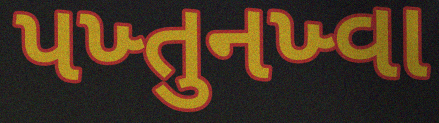
પખ્તુનખ્વા